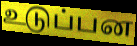
உடுப்பன